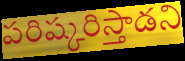
పరిష్కరిస్తాడని